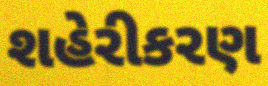
શહેરીકરણ